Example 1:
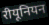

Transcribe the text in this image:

रीयूनियन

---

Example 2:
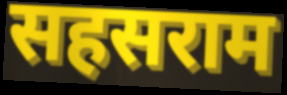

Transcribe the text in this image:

सहसराम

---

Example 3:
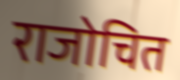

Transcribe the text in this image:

राजोचित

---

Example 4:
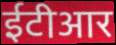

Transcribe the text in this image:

ईटीआर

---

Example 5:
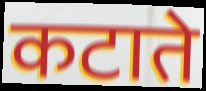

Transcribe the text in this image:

कटाते